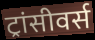
ट्रांसीवर्स